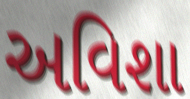
અવિશા